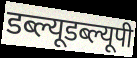
डब्ल्यूडब्ल्यूपी